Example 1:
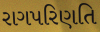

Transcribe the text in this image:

રાગપરિણતિ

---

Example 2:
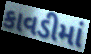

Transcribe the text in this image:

કાવડીમાં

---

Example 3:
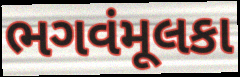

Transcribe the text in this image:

ભગવંમૂલકા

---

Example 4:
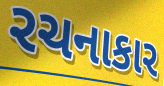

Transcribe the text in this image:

રચનાકાર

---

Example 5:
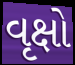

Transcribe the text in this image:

વૃક્ષો